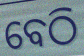
ବେଠି